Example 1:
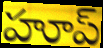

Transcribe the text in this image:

హూప్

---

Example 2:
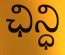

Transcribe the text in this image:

ఛిన్ధి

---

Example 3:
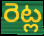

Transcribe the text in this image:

రెట్ల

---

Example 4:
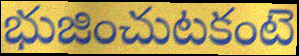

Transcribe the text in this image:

భుజించుటకంటె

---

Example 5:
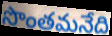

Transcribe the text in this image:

సొంతమనేది